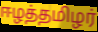
ஈழத்தமிழர்